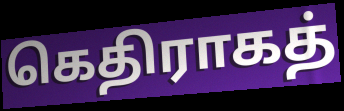
கெதிராகத்